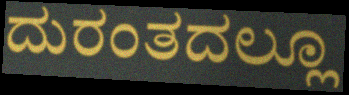
ದುರಂತದಲ್ಲೂ